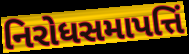
નિરોધસમાપત્તિં